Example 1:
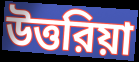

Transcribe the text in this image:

উত্তরিয়া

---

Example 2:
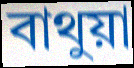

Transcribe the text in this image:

বাথুয়া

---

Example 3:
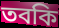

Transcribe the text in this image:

তবকি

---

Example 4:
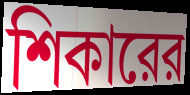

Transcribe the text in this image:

শিকারের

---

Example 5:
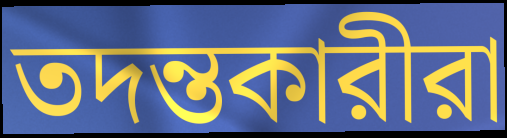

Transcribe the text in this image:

তদন্তকারীরা